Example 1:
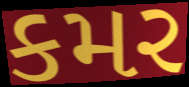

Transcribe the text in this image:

કમર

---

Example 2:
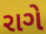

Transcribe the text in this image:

રાગે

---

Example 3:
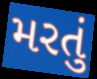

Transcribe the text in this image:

મરતું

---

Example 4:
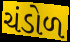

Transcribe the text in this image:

ચંડોળ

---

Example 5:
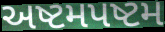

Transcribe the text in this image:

અષ્ટમપષ્ટમ